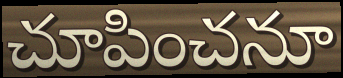
చూపించనూ